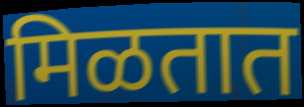
मिळतात